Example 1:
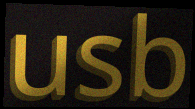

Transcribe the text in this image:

usb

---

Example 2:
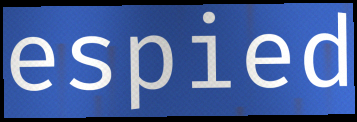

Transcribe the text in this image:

espied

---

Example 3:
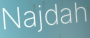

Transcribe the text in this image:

Najdah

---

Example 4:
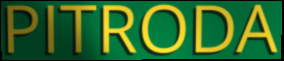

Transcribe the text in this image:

PITRODA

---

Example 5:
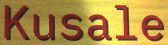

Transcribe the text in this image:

Kusale